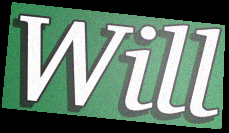
Will